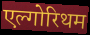
एल्गोरिथम